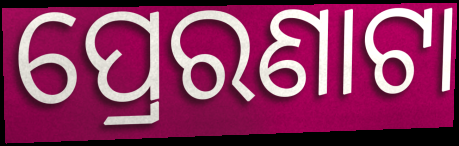
ପ୍ରେରଣାଟା